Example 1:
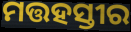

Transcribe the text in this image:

ମତ୍ତହସ୍ତୀର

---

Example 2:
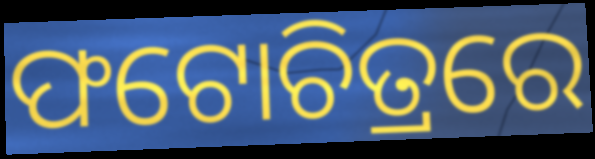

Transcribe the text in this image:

ଫଟୋଚିତ୍ରରେ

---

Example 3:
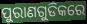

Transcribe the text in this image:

ପୁରାଣଗୁଡିକରେ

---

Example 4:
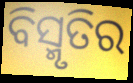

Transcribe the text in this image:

ବିସ୍ମୃତିର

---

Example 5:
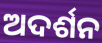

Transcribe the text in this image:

ଅଦର୍ଶନ